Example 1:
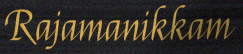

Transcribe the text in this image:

Rajamanikkam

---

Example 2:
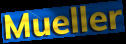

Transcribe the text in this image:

Mueller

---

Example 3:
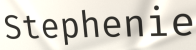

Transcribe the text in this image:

Stephenie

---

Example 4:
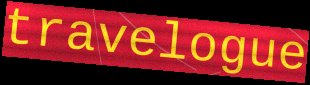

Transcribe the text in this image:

travelogue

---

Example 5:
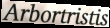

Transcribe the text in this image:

Arbortristis